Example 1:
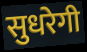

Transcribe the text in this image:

सुधरेगी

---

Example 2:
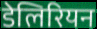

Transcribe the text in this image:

डेलिरियन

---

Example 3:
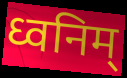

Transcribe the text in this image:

ध्वनिम्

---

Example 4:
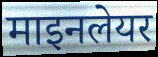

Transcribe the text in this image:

माइनलेयर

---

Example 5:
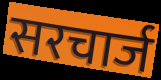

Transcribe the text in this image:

सरचार्ज